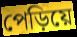
পেড়িয়ে